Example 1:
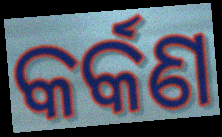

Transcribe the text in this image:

କର୍କଣ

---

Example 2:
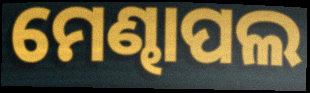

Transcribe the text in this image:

ମେଣ୍ଢାପଲ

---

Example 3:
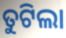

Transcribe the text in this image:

ତୁଟିଲା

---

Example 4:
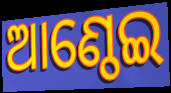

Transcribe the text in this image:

ଆଣ୍ଠେଇ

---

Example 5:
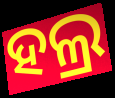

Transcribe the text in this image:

ହଲ୍ର